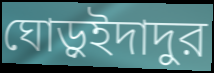
ঘোড়ুইদাদুর